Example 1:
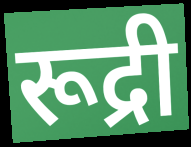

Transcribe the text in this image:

रूद्री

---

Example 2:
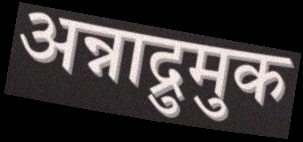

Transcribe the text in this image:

अन्नाद्रुमुक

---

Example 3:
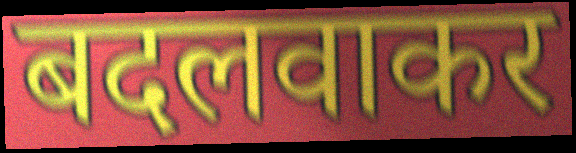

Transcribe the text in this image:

बदलवाकर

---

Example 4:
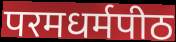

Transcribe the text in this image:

परमधर्मपीठ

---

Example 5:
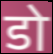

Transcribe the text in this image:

डो